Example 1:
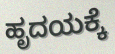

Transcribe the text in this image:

ಹೃದಯಕ್ಕೆ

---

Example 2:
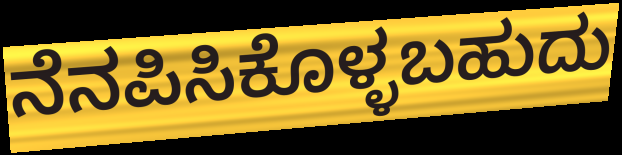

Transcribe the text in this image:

ನೆನಪಿಸಿಕೊಳ್ಳಬಹುದು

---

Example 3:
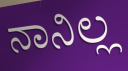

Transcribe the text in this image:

ನಾನಿಲ್ಲ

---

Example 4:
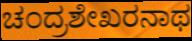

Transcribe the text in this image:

ಚಂದ್ರಶೇಖರನಾಥ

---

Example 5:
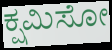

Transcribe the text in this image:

ಕ್ಷಮಿಸೋ